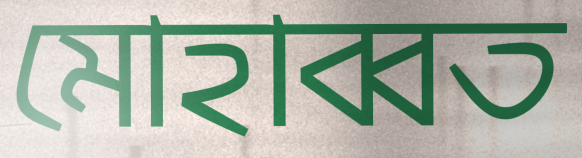
মোহাব্বত